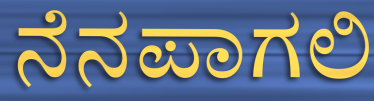
ನೆನಪಾಗಲಿ